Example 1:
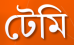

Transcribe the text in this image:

টেমি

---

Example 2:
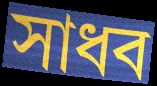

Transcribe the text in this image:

সাধব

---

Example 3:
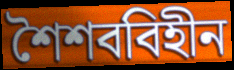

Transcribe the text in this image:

শৈশববিহীন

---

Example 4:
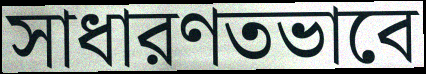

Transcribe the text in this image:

সাধারণতভাবে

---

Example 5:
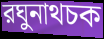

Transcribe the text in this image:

রঘুনাথচক